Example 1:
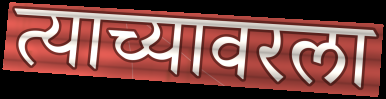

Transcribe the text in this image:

त्याच्यावरला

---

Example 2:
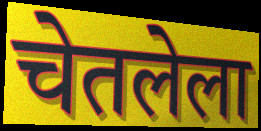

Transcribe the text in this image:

चेतलेला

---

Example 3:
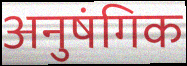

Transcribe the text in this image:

अनुषंगिक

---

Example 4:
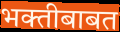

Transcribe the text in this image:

भक्तीबाबत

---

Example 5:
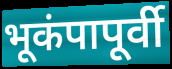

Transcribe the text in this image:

भूकंपापूर्वी